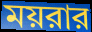
ময়রার